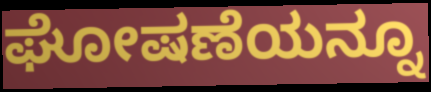
ಘೋಷಣೆಯನ್ನೂ